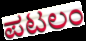
ಪಟಲಂ